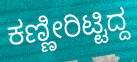
ಕಣ್ಣೀರಿಟ್ಟಿದ್ದ